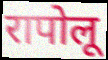
रापोलू